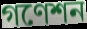
গণেশন